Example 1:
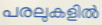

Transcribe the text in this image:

പരലുകളിൽ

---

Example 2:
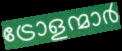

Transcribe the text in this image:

ട്രോളന്മാർ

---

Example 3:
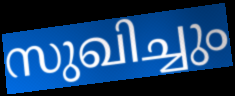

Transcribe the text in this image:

സുഖിച്ചും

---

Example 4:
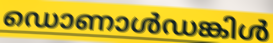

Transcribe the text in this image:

ഡൊണാൾഡങ്കിൾ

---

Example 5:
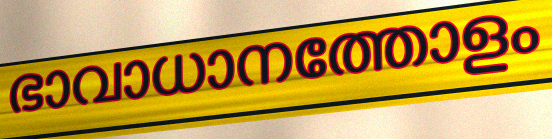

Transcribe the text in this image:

ഭാവാധാനത്തോളം